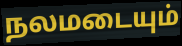
நலமடையும்